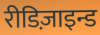
रीडिज़ाइन्ड